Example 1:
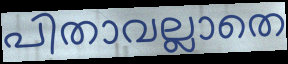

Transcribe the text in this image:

പിതാവല്ലാതെ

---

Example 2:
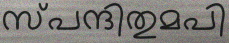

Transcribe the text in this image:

സ്പന്ദിതുമപി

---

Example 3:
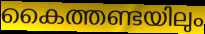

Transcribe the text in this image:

കൈത്തണ്ടയിലും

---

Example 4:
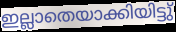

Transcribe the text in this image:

ഇല്ലാതെയാക്കിയിട്ടു്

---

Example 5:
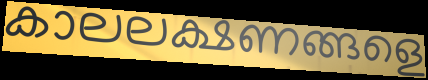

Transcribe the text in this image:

കാലലക്ഷണങ്ങളെ